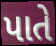
પાતે